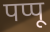
पप्‍पू